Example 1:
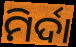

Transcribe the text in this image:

ମିର୍ଦା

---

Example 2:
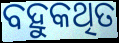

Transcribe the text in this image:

ବହୁକଥିତ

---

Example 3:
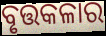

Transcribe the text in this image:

ବୃତ୍ତକଳାର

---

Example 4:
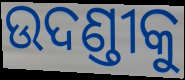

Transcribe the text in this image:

ଉଦଣ୍ଡୀକୁ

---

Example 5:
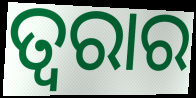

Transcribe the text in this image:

ତ୍ୱରାର